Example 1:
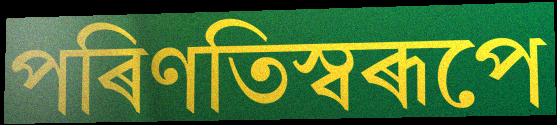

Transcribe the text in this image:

পৰিণতিস্বৰূপে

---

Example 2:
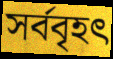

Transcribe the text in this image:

সৰ্ববৃহৎ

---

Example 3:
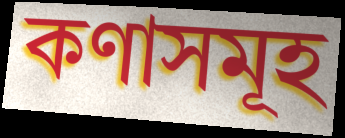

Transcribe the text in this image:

কণাসমূহ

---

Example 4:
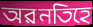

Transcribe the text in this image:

অৱনতিহে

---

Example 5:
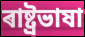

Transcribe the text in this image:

ৰাষ্ট্ৰভাষা